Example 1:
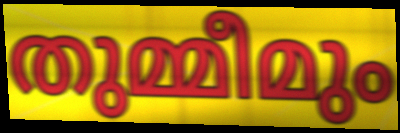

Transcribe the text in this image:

തുമ്മീമും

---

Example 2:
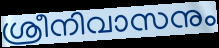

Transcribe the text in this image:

ശ്രീനിവാസനും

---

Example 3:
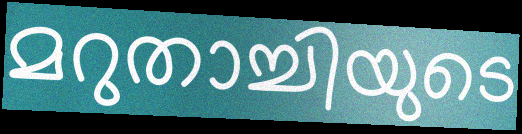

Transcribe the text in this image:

മറുതാച്ചിയുടെ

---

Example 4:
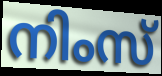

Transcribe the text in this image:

നിംസ്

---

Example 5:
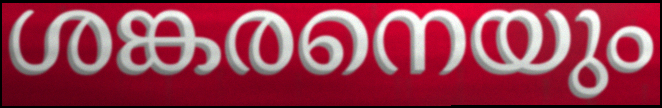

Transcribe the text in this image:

ശങ്കരനെയും